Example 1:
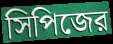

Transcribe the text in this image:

সিপিজের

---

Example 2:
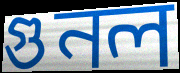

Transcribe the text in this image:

গুনল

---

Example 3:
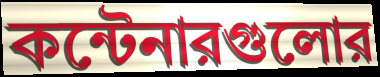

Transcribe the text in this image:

কন্টেনারগুলোর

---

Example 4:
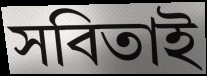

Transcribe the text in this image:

সবিতাই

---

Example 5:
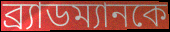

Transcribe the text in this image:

ব্র্যাডম্যানকে